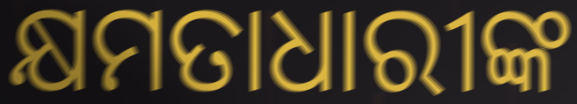
କ୍ଷମତାଧାରୀଙ୍କ